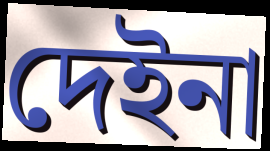
দেইনা